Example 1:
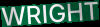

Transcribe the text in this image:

WRIGHT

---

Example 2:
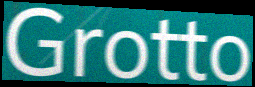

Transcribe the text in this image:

Grotto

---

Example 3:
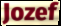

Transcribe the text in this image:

Jozef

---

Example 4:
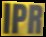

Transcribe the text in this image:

IPR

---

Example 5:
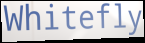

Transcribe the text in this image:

Whitefly